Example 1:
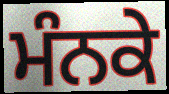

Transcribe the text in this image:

ਮੰਨਕੇ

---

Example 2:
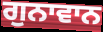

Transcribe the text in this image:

ਗੁਨਾਵਾਨ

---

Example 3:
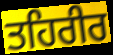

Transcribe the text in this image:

ਤਹਿਰੀਰ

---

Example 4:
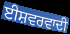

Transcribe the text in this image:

ਈਸ਼ਵਰਵਾਦੀ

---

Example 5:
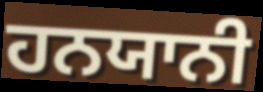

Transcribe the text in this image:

ਹਨਯਾਨੀ